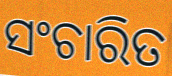
ସଂଚାରିତ